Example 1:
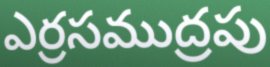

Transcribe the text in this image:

ఎర్రసముద్రపు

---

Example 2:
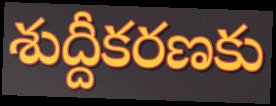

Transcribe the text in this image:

శుద్దీకరణకు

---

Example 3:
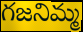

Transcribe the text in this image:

గజనిమ్మ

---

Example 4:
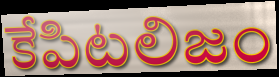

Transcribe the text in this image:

కేపిటలిజం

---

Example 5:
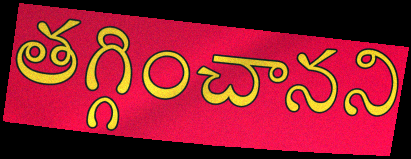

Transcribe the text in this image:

తగ్గించానని